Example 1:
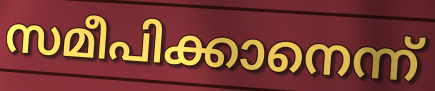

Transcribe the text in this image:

സമീപിക്കാനെന്ന്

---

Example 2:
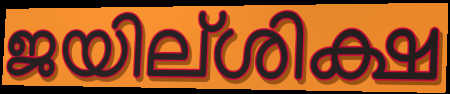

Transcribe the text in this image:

ജയില്ശിക്ഷ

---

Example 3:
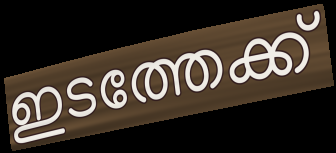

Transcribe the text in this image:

ഇടത്തേക്ക്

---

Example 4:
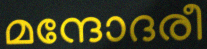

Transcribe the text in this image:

മന്ദോദരീ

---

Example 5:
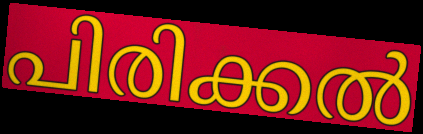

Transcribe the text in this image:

പിരിക്കൽ